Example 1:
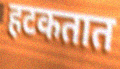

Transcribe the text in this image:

हटकतात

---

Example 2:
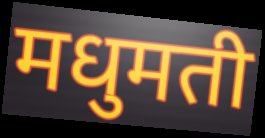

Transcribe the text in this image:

मधुमती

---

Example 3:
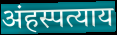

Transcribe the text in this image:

अंहस्पत्याय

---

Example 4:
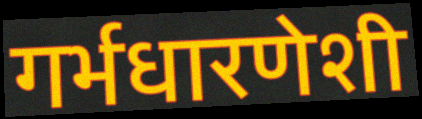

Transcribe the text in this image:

गर्भधारणेशी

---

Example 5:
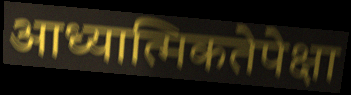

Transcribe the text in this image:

आध्यात्मिकतेपेक्षा